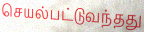
செயல்பட்டுவந்தது